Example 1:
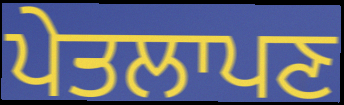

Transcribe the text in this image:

ਪੇਤਲਾਪਣ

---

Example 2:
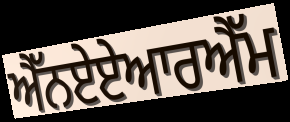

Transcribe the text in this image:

ਐੱਨਏਏਆਰਐੱਮ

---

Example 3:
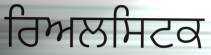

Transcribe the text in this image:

ਰਿਅਲਸਿਟਕ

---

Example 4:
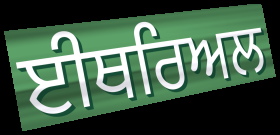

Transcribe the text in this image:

ਈਥਰਿਅਲ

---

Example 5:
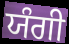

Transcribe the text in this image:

ਯੰਗੀ